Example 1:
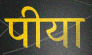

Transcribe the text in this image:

पीया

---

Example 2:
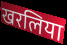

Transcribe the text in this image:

खरलिया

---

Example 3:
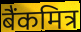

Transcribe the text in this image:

बैंकमित्र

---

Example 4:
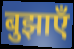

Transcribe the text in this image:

बुझाएँ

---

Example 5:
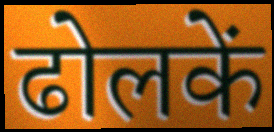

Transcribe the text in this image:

ढोलकें